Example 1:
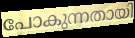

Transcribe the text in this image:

പോകുന്നതായി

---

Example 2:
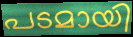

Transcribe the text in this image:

പടമായി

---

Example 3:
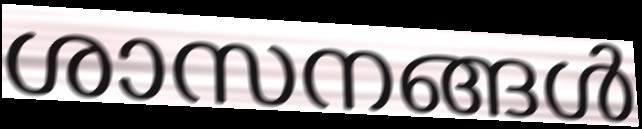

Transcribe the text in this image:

ശാസനങ്ങൾ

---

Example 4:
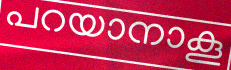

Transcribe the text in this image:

പറയാനാകൂ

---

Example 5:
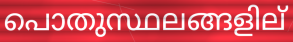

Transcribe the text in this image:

പൊതുസ്ഥലങ്ങളില്